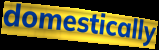
domestically